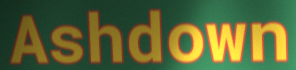
Ashdown